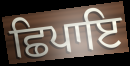
ਛਿਪਾਇ